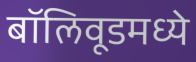
बॉलिवूडमध्ये